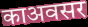
काअवसर